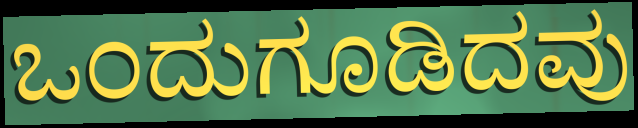
ಒಂದುಗೂಡಿದವು